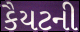
કૈયટની